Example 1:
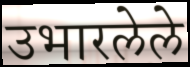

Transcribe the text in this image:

उभारलेले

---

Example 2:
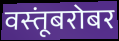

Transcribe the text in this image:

वस्तूंबरोबर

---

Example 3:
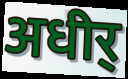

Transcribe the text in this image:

अधीर्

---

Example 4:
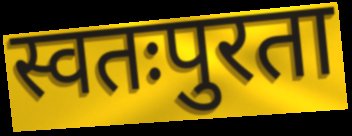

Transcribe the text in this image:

स्वतःपुरता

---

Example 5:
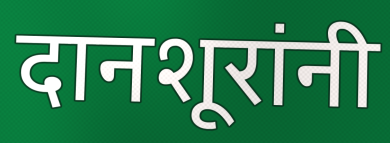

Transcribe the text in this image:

दानशूरांनी